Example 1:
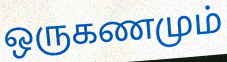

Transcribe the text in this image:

ஒருகணமும்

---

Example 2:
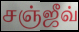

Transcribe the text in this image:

சஞ்ஜீவ்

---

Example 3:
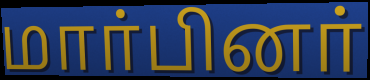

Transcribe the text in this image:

மார்பினர்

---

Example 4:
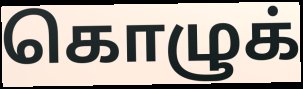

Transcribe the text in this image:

கொழுக்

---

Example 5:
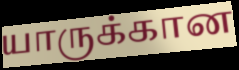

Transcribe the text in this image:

யாருக்கான